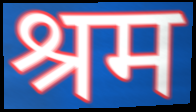
श्रम